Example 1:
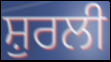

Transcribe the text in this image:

ਸ਼ੁਰਲੀ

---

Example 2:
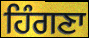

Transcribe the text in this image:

ਹਿੰਗਣਾ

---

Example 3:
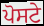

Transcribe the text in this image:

ਪੋਸਟੇ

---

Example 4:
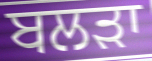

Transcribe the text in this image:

ਬਲੜਾ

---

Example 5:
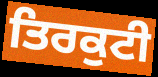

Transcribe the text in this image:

ਤਿਰਕੁਟੀ